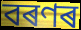
বৰণৰ